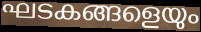
ഘടകങ്ങളെയും